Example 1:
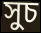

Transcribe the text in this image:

সুচ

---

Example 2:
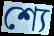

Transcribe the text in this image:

শ্যে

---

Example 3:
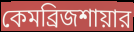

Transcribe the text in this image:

কেমব্রিজশায়ার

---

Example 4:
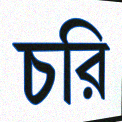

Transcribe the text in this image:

চরি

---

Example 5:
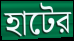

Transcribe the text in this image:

হাটের